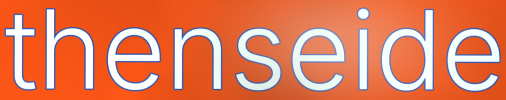
thenseide